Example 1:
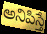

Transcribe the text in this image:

అనిపిస్తే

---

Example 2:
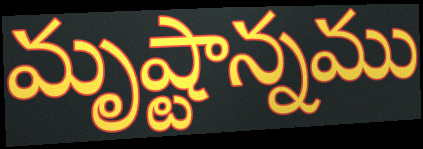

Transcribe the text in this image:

మృష్టాన్నము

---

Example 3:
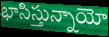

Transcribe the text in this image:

భాసిస్తున్నాయో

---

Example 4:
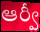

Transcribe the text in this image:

ఆర్వీ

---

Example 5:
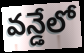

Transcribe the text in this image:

వన్డేలో